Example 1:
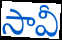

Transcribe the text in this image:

సావీ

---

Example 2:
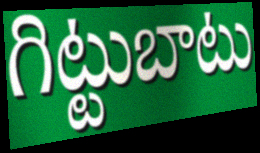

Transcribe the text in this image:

గిట్టుబాటు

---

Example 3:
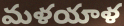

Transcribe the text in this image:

మళయాళ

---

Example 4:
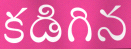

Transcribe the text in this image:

కడిగిన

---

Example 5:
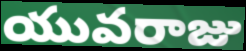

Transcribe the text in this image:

యువరాజు